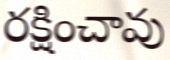
రక్షించావు